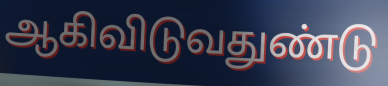
ஆகிவிடுவதுண்டு